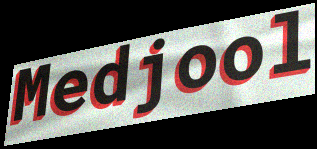
Medjool